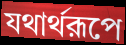
যথার্থরূপে